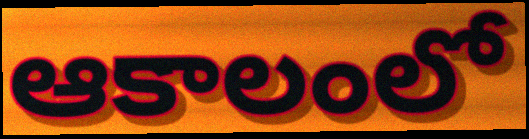
ఆకాలంలో